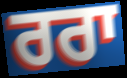
ਰਰਾ